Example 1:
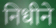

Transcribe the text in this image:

निधीने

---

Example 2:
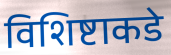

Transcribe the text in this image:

विशिष्टाकडे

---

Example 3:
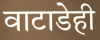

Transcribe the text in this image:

वाटाडेही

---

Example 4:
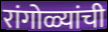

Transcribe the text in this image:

रांगोळ्यांची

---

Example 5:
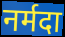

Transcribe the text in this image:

नर्मदा